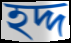
হদ্দ